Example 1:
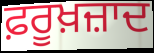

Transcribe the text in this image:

ਫ਼ਰੂਖ਼ਜ਼ਾਦ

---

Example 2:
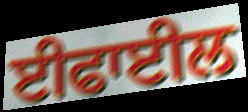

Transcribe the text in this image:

ਈਫਾਈਲ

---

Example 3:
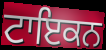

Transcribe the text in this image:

ਟਾਇਕਨ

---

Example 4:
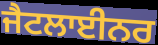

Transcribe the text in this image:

ਜੈਟਲਾਈਨਰ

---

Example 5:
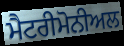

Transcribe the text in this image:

ਮੈਟਰੀਮੋਨੀਅਲ